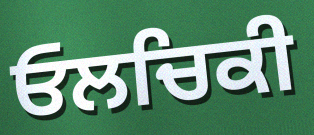
ਓਲਚਿਕੀ